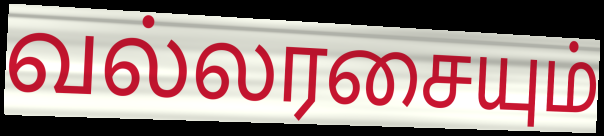
வல்லரசையும்